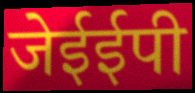
जेईईपी